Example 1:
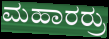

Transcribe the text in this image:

ಮಹಾರರ್ರು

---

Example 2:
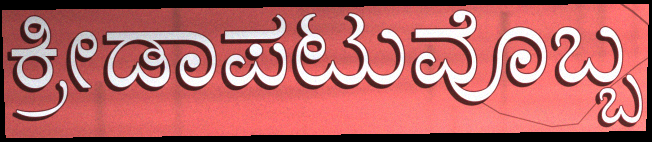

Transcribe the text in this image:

ಕ್ರೀಡಾಪಟುವೊಬ್ಬ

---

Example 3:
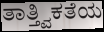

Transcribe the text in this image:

ತಾತ್ತ್ವಿಕತೆಯ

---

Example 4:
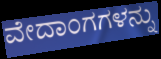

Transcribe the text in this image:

ವೇದಾಂಗಗಳನ್ನು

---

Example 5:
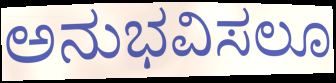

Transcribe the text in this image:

ಅನುಭವಿಸಲೂ